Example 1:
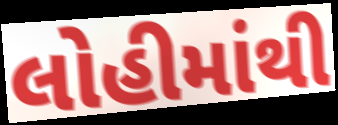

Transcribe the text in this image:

લોહીમાંથી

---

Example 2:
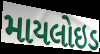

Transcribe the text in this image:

માયલોઇડ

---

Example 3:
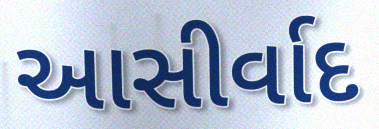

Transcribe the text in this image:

આસીર્વાદ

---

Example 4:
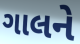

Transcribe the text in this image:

ગાલને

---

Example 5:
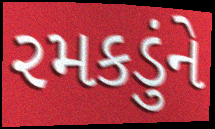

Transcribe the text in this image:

રમકડુંને